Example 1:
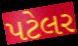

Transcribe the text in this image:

પટેલર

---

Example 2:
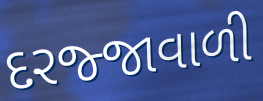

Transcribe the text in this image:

દરજ્જાવાળી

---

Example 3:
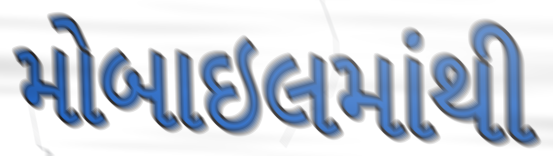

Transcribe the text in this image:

મોબાઇલમાંથી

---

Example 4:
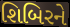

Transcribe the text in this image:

શિબિરને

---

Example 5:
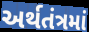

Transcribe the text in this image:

અર્થતંત્રમાં